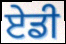
ਏਡੀ